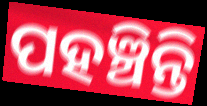
ପହଞ୍ଚିନ୍ତି